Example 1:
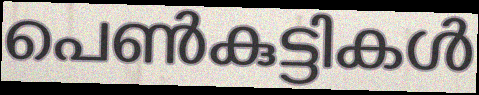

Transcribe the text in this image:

പെൺകുട്ടികൾ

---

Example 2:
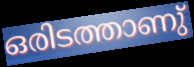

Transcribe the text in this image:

ഒരിടത്താണു്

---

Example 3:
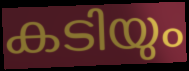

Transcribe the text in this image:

കടിയും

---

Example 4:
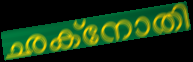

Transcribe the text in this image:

ഛക്നോതി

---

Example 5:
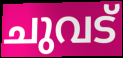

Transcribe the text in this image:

ചുവട്